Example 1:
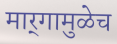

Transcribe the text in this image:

मार्गामुळेच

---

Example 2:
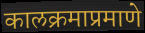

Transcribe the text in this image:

कालक्रमाप्रमाणे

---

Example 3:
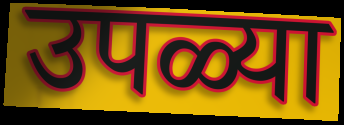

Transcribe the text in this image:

उपळ्या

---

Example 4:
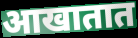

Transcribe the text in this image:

आखातात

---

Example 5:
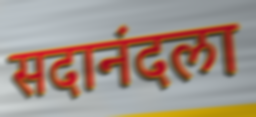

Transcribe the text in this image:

सदानंदला